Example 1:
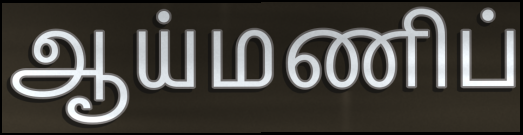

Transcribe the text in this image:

ஆய்மணிப்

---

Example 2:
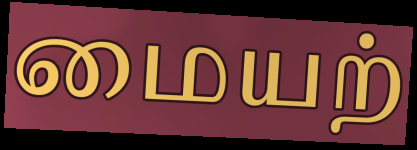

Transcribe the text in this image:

மையற்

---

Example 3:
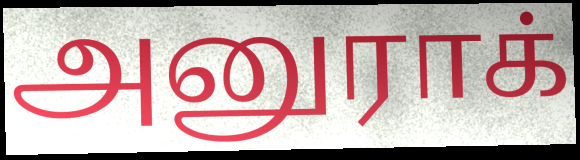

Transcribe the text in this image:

அனுராக்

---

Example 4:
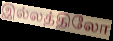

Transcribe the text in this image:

இல்லத்திலோ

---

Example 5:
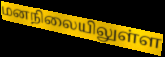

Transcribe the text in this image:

மனநிலையிலுள்ள